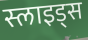
स्लाइड्स